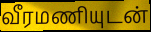
வீரமணியுடன்